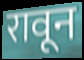
रावून